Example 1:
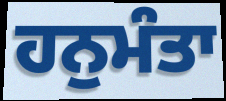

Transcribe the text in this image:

ਹਨੁਮੰਤਾ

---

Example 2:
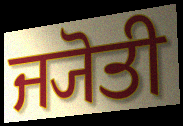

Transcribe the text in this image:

ਜ੍ਯੋਤੀ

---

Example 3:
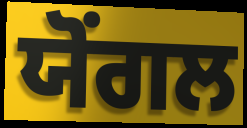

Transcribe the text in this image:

ਯੋਂਗਲ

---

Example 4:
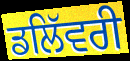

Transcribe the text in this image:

ਡਲਿੱਵਰੀ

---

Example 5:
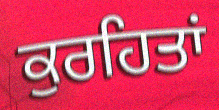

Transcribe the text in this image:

ਕੁਰਹਿਤਾਂ